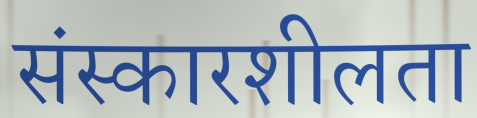
संस्कारशीलता